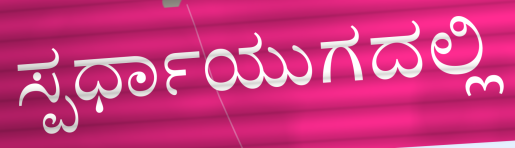
ಸ್ಪರ್ಧಾಯುಗದಲ್ಲಿ